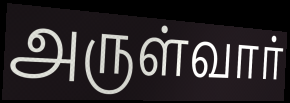
அருள்வார்